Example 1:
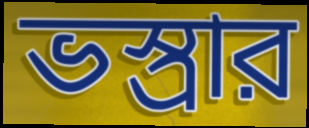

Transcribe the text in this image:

ভস্ত্রার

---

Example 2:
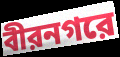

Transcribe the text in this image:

বীরনগরে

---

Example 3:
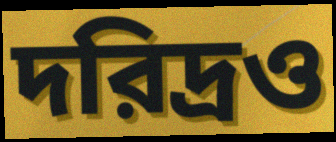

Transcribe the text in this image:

দরিদ্রও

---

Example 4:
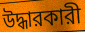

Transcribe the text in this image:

উদ্ধারকারী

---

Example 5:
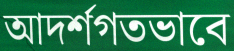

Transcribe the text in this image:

আদর্শগতভাবে